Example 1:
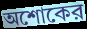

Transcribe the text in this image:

অশোকের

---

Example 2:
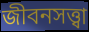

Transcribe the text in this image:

জীবনসত্ত্বা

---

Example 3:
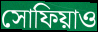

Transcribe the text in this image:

সোফিয়াও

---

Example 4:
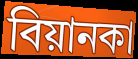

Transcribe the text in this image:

বিয়ানকা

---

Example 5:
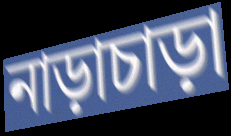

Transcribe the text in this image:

নাড়াচাড়া